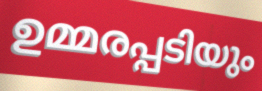
ഉമ്മരപ്പടിയും